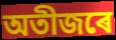
অতীজৰে